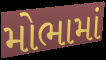
મોભામાં